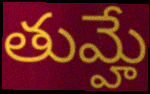
తుమ్హే